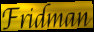
Fridman